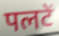
पलटें